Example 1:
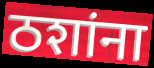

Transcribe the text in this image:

ठशांना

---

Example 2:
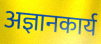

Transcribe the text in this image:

अज्ञानकार्य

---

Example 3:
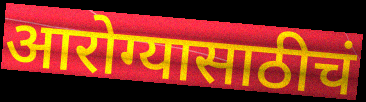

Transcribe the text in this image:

आरोग्यासाठीचं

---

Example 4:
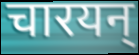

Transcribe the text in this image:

चारयन्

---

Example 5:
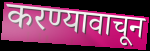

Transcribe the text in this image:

करण्यावाचून